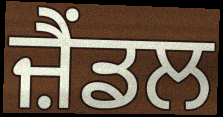
ਜ਼ੈਂਡਲ